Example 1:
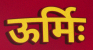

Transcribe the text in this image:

ऊर्मिः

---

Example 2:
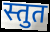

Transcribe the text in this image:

स्तुत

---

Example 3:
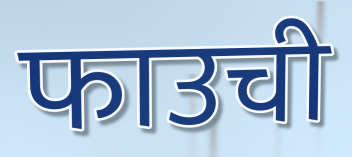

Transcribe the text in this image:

फाउची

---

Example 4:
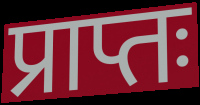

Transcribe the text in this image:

प्राप्तः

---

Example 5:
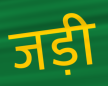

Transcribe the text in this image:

जड़ी